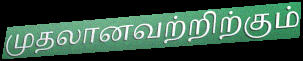
முதலானவற்றிற்கும்